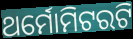
ଥର୍ମୋମିଟରଟି